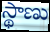
స్థాణు